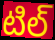
టిల్